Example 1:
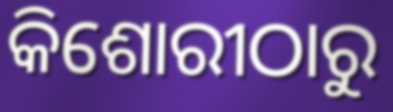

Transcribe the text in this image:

କିଶୋରୀଠାରୁ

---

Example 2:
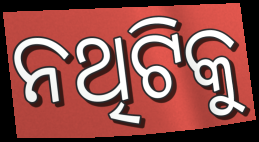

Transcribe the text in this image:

ନଥିଟିକୁ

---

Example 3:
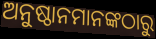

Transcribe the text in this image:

ଅନୁଷ୍ଠାନମାନଙ୍କଠାରୁ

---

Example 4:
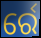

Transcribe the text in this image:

ର୍ରେ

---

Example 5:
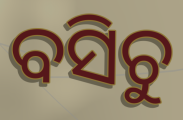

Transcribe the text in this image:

ବସିଚୁ